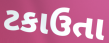
ટકાઉતા